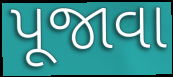
પૂજાવા